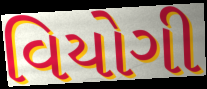
વિયોગી